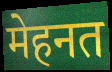
मेहनत